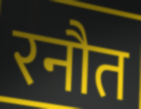
रनौत